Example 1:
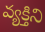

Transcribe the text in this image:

వ్యక్తిని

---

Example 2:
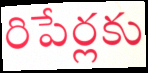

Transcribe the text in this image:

రిపేర్లకు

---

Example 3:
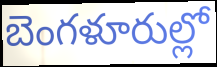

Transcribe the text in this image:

బెంగళూరుల్లో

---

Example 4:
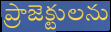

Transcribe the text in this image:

ప్రాజెక్టులను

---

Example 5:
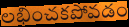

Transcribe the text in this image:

లభించకపోవడం